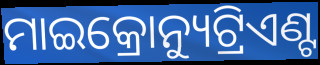
ମାଇକ୍ରୋନ୍ୟୁଟ୍ରିଏଣ୍ଟ